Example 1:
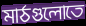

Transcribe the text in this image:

মাঠগুলোতে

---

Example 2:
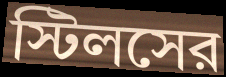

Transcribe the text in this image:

স্টিলসের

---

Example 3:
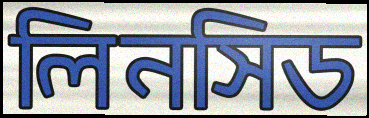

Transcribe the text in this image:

লিনসিড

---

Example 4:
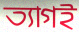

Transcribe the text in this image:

ত্যাগই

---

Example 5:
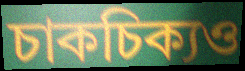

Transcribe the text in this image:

চাকচিক্যও